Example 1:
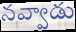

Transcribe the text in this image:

నవ్వాడు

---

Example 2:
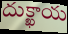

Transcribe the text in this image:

దుక్ఖాయ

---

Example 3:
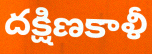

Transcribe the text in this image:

దక్షిణకాళీ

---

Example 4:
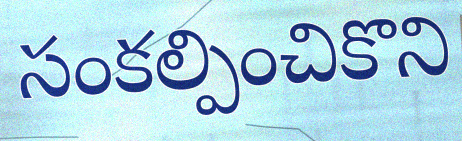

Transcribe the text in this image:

సంకల్పించికొని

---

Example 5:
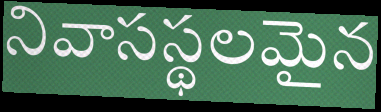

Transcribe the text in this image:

నివాసస్థలమైన